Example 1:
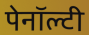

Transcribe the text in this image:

पेनॉल्टी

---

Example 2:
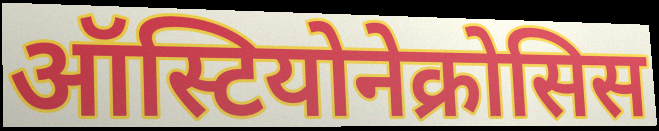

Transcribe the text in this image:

ऑस्टियोनेक्रोसिस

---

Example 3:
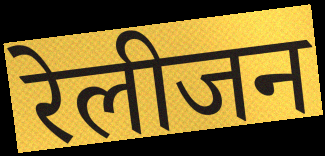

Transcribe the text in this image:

रेलीजन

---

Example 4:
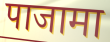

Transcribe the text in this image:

पाजामा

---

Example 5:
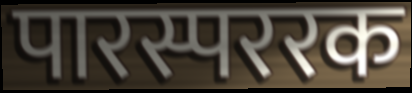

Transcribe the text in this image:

पारस्पररक